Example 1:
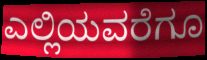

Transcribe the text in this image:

ಎಲ್ಲಿಯವರೆಗೂ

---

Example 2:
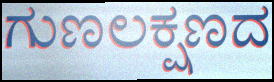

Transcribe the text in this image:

ಗುಣಲಕ್ಷಣದ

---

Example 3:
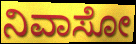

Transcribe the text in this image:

ನಿವಾಸೋ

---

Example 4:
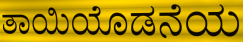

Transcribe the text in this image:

ತಾಯಿಯೊಡನೆಯ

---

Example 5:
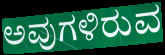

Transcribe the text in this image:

ಅವುಗಳಿರುವ